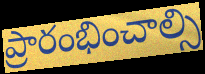
ప్రారంభించాల్సి